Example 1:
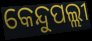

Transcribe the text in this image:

କେନ୍ଦୁପଲ୍ଲୀ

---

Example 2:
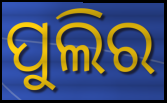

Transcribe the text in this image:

ପୁଲିର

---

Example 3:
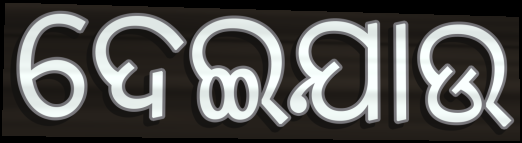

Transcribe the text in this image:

ଦେଇଯାଉ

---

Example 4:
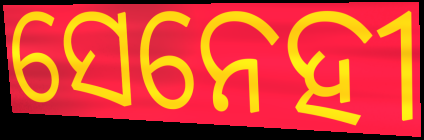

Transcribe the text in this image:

ସେନେହୀ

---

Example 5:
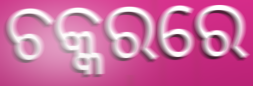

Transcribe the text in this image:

ଚକ୍କରରେ